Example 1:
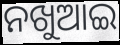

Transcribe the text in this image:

ନଖୁଆଇ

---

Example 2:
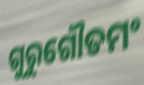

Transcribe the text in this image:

ଗୁରୁଗୌତମଂ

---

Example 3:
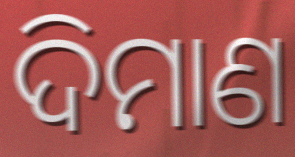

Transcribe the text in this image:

ଦିମାଣ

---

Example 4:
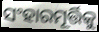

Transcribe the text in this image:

ସଂହାରମୂର୍ତ୍ତିକୁ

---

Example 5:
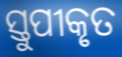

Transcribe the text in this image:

ସ୍ତୁପୀକୃତ